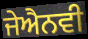
ਜੇਐਨਵੀ